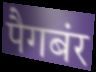
पैगबंर